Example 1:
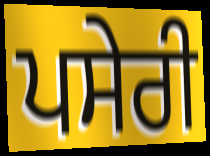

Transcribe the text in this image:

ਪਸੇਰੀ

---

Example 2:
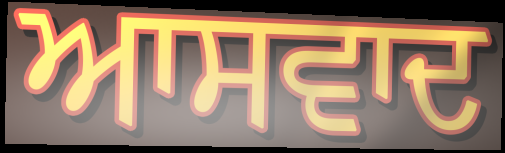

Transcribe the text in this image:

ਆਸਵਾਦ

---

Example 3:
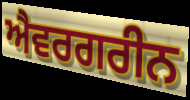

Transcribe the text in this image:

ਐਵਰਗਰੀਨ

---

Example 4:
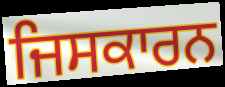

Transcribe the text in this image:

ਜਿਸਕਾਰਨ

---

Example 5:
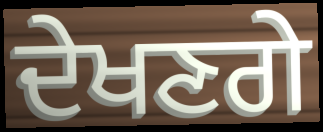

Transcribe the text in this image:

ਦੇਖਣਗੇ